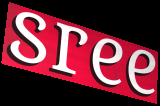
sree